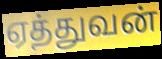
ஏத்துவன்